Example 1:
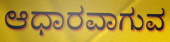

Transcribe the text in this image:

ಆಧಾರವಾಗುವ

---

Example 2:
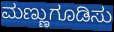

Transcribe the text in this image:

ಮಣ್ಣುಗೂಡಿಸು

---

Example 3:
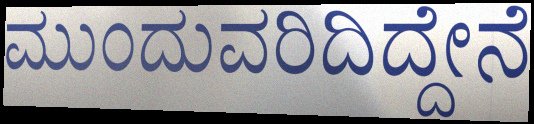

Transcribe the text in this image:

ಮುಂದುವರಿದಿದ್ದೇನೆ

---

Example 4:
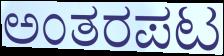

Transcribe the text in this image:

ಅಂತರಪಟ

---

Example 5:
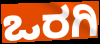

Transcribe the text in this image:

ಒರಗಿ